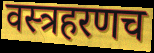
वस्त्रहरणच